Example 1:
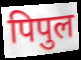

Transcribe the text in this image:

पिपुल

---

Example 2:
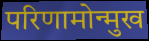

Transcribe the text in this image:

परिणामोन्मुख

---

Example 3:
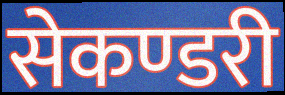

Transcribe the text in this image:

सेकण्‍डरी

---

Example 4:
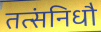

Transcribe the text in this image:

तत्संनिधौ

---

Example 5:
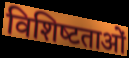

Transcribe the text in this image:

विशिष्‍टताओं